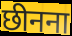
छीनना